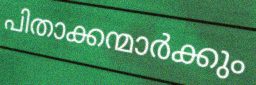
പിതാക്കന്മാർക്കും